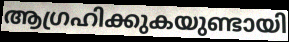
ആഗ്രഹിക്കുകയുണ്ടായി